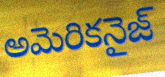
అమెరికనైజ్